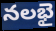
నలభై